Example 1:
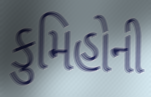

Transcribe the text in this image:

કુમિહોની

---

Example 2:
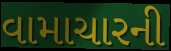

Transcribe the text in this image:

વામાચારની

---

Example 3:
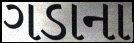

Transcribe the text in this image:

ગડાના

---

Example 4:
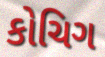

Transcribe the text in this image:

કોચિગ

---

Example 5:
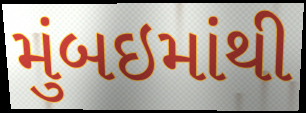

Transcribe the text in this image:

મુંબઇમાંથી